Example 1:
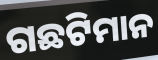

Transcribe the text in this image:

ଗଛଟିମାନ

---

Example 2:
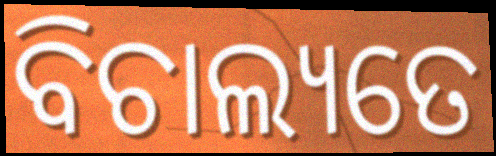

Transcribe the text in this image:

ବିଚାଲ୍ୟତେ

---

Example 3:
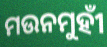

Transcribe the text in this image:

ମଉନମୁହୀଁ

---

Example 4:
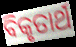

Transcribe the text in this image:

ବିକୃତାର୍ଥ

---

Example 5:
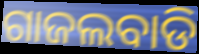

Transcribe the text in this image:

ଗାଜଲବାଡି